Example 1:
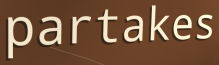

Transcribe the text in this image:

partakes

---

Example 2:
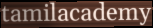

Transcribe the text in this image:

tamilacademy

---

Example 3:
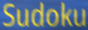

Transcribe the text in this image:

Sudoku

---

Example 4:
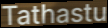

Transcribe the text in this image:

Tathastu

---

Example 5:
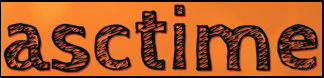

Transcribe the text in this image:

asctime